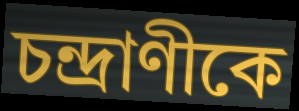
চন্দ্রাণীকে